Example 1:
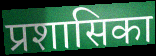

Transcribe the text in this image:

प्रशासिका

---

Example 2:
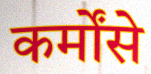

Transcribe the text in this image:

कर्मोंसे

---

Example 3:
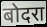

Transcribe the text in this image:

बोदरा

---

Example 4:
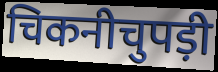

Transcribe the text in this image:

चिकनीचुपड़ी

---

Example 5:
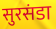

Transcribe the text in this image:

सुरसंडा